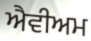
ਐਵੀਅਮ